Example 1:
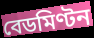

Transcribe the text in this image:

বেডমিণ্টন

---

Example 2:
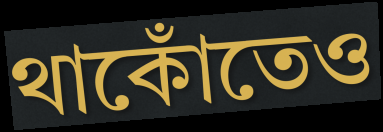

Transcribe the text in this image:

থাকোঁতেও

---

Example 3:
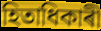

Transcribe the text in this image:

হিতাধিকাৰী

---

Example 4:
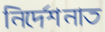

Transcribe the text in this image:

নিৰ্দেশনাত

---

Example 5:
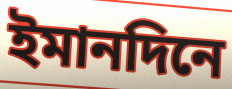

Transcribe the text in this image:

ইমানদিনে